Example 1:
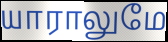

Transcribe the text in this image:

யாராலுமே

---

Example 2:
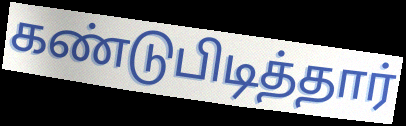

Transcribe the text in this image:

கண்டுபிடித்தார்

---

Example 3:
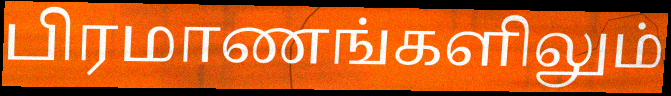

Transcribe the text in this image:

பிரமாணங்களிலும்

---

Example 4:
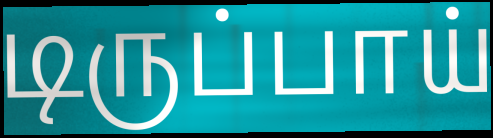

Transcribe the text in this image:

டிருப்பாய்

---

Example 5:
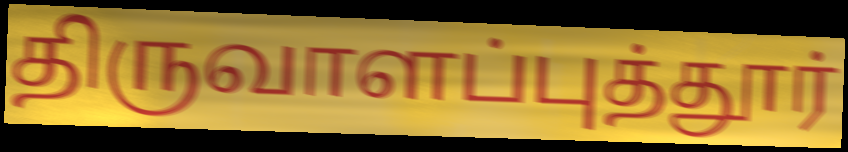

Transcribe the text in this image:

திருவாளப்புத்தூர்